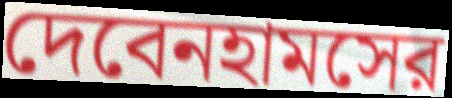
দেবেনহামসের